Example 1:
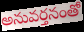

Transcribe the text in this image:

అనువర్తనంతో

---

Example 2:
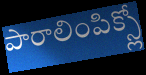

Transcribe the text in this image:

పారాలింపిక్స్లో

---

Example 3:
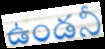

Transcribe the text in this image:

ఉండనీ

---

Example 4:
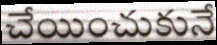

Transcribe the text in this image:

చేయించుకునే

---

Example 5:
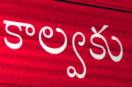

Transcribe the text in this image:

కాల్వకు